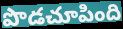
పొడచూపింది